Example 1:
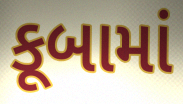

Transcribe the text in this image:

કૂબામાં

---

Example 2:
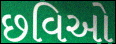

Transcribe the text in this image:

છવિઓ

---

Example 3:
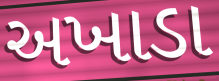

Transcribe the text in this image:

અખાડા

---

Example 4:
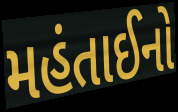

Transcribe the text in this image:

મહંતાઈનો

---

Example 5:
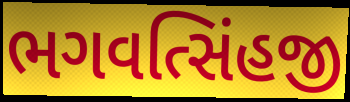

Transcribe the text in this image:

ભગવત્સિંહજી